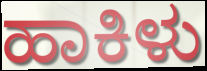
ಹಾಕಿಳು